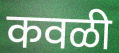
कवळी